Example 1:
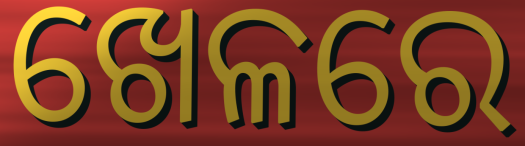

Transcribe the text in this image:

ଖେଳରେ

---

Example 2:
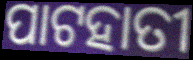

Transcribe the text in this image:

ପାଟହାତୀ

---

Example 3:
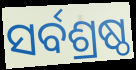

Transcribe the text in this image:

ସର୍ବଶ୍ରଷ୍ଠ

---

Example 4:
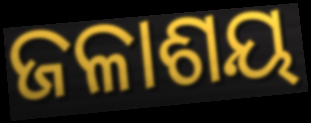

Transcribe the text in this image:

ଜଳାଶୟ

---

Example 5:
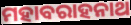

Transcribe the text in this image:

ମହାବରାହନାଥ